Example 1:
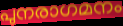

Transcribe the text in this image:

പുനരാഗമനം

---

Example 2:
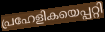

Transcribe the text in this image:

പ്രഹേളികയെപ്പറ്റി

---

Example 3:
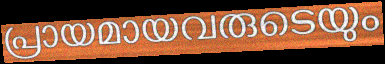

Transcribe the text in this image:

പ്രായമായവരുടെയും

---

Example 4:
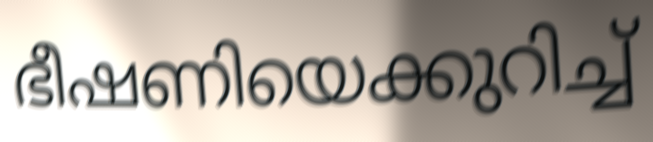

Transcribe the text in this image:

ഭീഷണിയെക്കുറിച്ച്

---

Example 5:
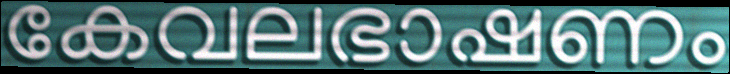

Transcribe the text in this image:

കേവലഭാഷണം